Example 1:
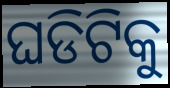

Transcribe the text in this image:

ଘଡିଟିକୁ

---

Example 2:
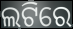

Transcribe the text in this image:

ଲଟିରେ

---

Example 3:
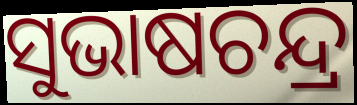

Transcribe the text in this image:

ସୁଭାଷଚନ୍ଦ୍ର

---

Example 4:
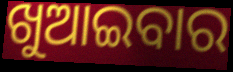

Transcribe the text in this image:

ଖୁଆଇବାର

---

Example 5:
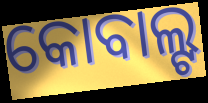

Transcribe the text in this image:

କୋବାଲ୍ଟ